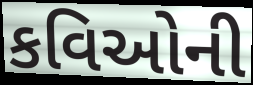
કવિઓની